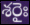
శరైః